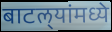
बाटल्यांमध्ये